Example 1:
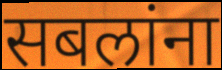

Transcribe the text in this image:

सबलांना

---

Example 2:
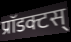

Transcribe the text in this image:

प्रॉडक्टस्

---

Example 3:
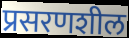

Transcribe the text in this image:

प्रसरणशील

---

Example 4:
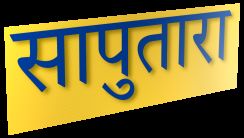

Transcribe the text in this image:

सापुतारा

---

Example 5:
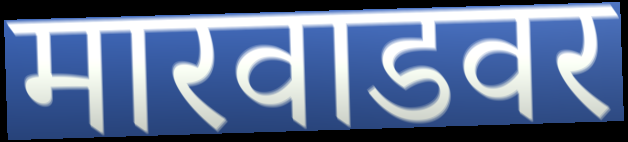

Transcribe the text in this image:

मारवाडवर